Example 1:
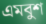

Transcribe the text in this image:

এমবুশ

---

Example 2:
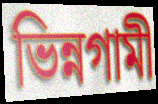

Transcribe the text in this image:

ভিন্নগামী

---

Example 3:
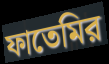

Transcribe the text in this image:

ফাতেমির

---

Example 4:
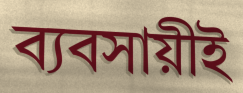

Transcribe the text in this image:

ব্যবসায়ীই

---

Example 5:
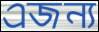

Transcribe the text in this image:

এজন্য